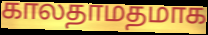
காலதாமதமாக